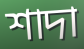
শাদা